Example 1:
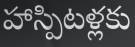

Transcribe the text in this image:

హాస్పిటళ్లకు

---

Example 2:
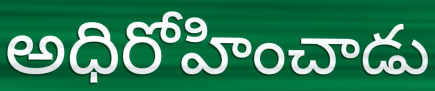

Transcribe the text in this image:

అధిరోహించాడు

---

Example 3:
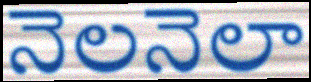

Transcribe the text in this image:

నెలనెలా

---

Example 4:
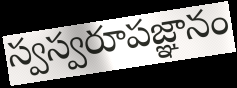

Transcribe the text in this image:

స్వస్వరూపజ్ఞానం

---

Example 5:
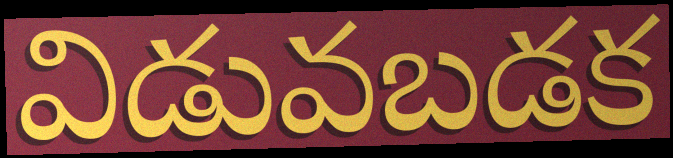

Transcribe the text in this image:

విడువబడక